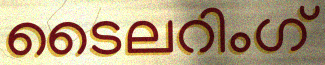
ടൈലറിംഗ്